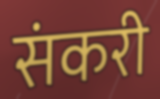
संकरी